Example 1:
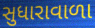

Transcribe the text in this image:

સુધારાવાળા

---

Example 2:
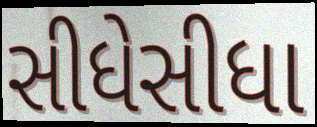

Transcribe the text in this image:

સીધેસીધા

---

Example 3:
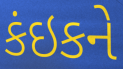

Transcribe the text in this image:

કંઇકને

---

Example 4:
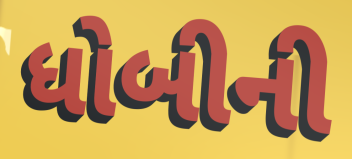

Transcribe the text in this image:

ધોબીની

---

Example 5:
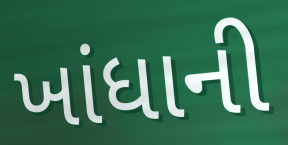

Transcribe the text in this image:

ખાંધાની